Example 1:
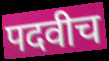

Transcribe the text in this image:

पदवीच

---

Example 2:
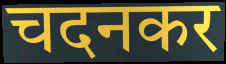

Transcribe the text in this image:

चदनकर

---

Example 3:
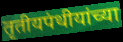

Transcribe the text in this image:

तृतीयपंथीयांच्या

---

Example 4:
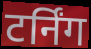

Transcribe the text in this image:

टर्निंग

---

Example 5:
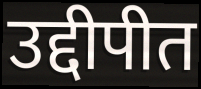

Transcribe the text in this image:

उद्दीपीत